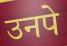
उनपे